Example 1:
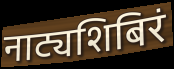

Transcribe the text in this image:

नाट्यशिबिरं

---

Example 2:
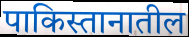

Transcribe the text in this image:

पाकिस्तानातील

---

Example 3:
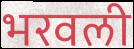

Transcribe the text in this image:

भरवली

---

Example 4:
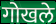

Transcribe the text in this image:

गोखले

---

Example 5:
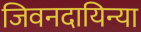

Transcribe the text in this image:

जिवनदायिन्या